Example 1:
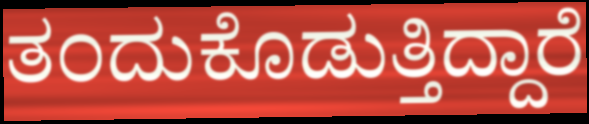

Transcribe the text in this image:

ತಂದುಕೊಡುತ್ತಿದ್ದಾರೆ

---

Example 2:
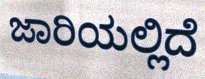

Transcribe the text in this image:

ಜಾರಿಯಲ್ಲಿದೆ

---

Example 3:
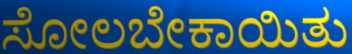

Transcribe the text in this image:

ಸೋಲಬೇಕಾಯಿತು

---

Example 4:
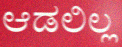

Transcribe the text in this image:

ಆಡಲಿಲ್ಲ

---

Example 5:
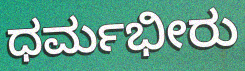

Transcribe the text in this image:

ಧರ್ಮಭೀರು